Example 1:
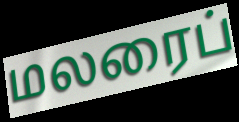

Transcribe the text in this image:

மலரைப்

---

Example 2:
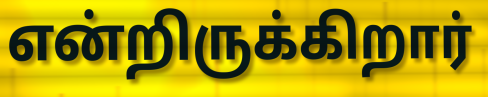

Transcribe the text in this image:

என்றிருக்கிறார்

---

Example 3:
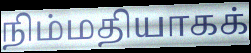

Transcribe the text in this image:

நிம்மதியாகக்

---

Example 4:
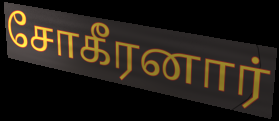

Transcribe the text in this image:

சோகீரனார்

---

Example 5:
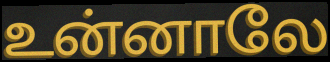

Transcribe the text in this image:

உன்னாலே